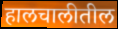
हालचालीतील